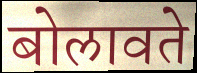
बोलावते